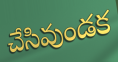
చేసివుండక